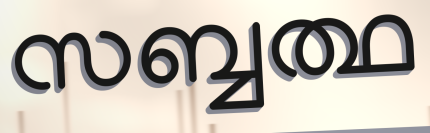
സബ്ബത്ഥ